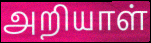
அறியாள்